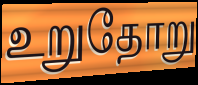
உறுதோறு